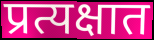
प्रत्यक्षात